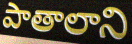
పాతాలాని